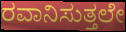
ರವಾನಿಸುತ್ತಲೇ